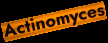
Actinomyces